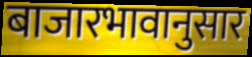
बाजारभावानुसार